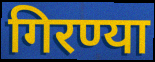
गिरण्या